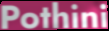
Pothini